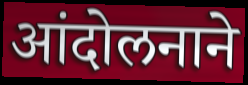
आंदोलनाने